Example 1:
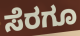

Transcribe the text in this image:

ಸೆರಗೂ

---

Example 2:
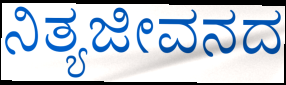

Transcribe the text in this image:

ನಿತ್ಯಜೀವನದ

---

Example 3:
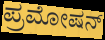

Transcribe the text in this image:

ಪ್ರಮೋಷನ್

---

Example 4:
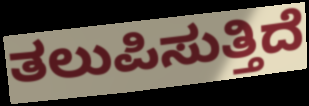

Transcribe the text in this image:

ತಲುಪಿಸುತ್ತಿದೆ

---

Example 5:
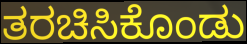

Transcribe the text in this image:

ತರಚಿಸಿಕೊಂಡು